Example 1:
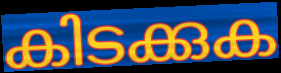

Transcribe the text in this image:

കിടക്കുക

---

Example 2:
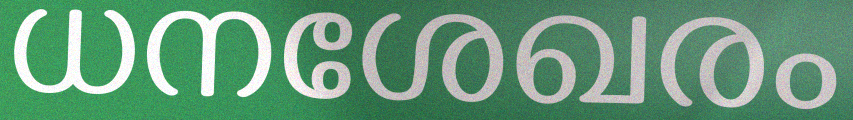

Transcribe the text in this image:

ധനശേഖരം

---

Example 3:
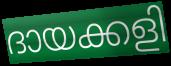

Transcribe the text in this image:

ദായക്കളി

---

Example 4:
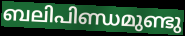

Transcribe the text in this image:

ബലിപിണ്ഡമുണ്ടു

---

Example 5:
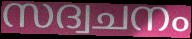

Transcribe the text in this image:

സദ്വചനം